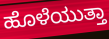
ಹೊಳೆಯುತ್ತಾ